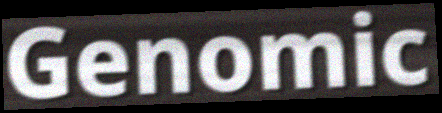
Genomic